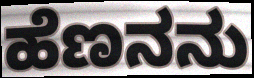
ಹೆಣನನು